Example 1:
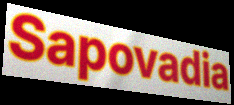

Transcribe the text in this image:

Sapovadia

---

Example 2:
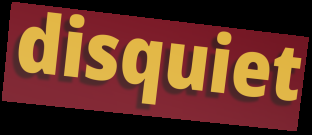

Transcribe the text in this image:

disquiet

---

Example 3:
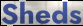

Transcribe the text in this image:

Sheds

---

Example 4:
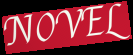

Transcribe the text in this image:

NOVEL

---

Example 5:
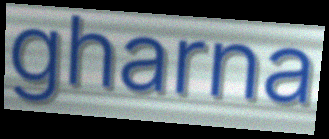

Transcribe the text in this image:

gharna